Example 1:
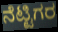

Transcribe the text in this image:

ನೆಟ್ಟಿಗರ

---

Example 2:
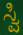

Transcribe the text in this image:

ಸ್ವಿ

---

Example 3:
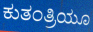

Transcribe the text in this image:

ಕುತಂತ್ರಿಯೂ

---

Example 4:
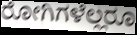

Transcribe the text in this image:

ರೋಗಿಗಳೆಲ್ಲರೂ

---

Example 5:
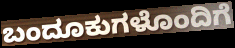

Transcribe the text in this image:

ಬಂದೂಕುಗಳೊಂದಿಗೆ